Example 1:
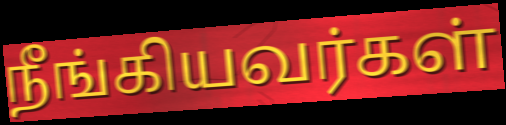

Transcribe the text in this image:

நீங்கியவர்கள்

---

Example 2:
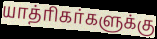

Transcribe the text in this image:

யாத்ரிகர்களுக்கு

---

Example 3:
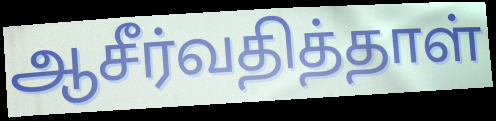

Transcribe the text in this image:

ஆசீர்வதித்தாள்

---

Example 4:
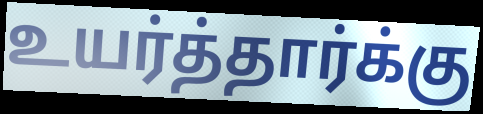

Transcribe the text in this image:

உயர்த்தார்க்கு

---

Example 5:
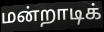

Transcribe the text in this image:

மன்றாடிக்